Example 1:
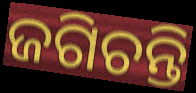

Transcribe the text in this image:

ଜଗିଚନ୍ତି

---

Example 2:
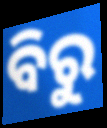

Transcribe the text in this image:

ବିରୁ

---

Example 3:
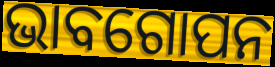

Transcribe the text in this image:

ଭାବଗୋପନ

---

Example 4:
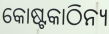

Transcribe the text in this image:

କୋଷ୍ଟକାଠିନ୍ୟ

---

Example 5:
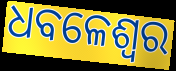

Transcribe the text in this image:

ଧବଳେଶ୍ଵର